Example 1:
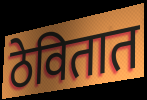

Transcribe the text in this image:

ठेवितात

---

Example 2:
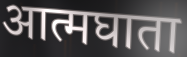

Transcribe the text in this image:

आत्मघाता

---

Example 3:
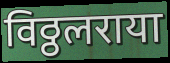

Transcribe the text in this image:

विठ्ठलराया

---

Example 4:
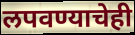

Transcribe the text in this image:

लपवण्याचेही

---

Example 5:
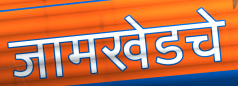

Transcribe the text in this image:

जामखेडचे